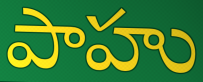
పాహు